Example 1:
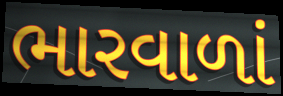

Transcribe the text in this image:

ભારવાળાં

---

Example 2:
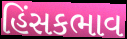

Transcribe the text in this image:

હિંસકભાવ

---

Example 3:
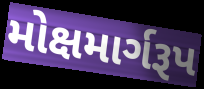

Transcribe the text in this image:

મોક્ષમાર્ગરૂપ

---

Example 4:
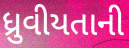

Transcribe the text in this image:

ધ્રુવીયતાની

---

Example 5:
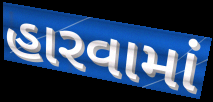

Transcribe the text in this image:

હારવામાં